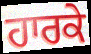
ਹਾਰਕੇ